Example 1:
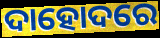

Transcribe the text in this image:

ଦାହୋଦରେ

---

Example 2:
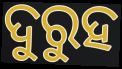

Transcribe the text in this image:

ଦୁରୁହ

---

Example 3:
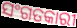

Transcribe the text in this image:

ସଂଗତକାରୀ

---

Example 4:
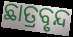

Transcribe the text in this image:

ଛାତ୍ରବୃନ୍ଦ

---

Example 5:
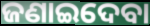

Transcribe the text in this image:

ଜଣାଇଦେବା